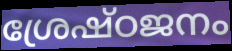
ശ്രേഷ്ഠജനം